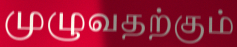
முழுவதற்கும்